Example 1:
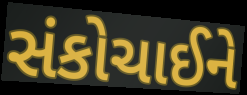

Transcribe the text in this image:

સંકોચાઈને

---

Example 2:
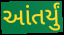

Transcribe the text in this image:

આંતર્યું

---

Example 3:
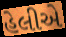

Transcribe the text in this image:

હેલીએ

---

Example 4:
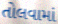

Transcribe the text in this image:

તોલવામાં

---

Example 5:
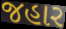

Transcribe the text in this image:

જહાર